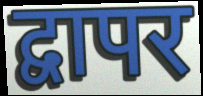
द्वापर